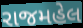
રાજમહેલ